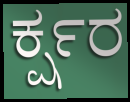
ರ್ಕ್ಷರ